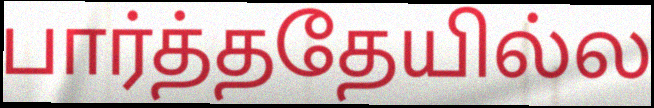
பார்த்ததேயில்ல